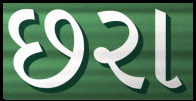
છરા